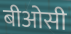
बीओसी